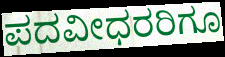
ಪದವೀಧರರಿಗೂ